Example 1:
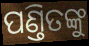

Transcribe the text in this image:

ପଣ୍ତିତଙ୍କୁ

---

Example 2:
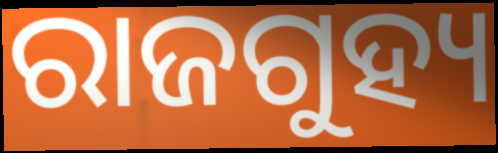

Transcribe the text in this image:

ରାଜଗୁହ୍ୟ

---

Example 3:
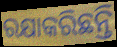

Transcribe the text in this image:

ରକ୍ଷାକରିଛନ୍ତି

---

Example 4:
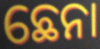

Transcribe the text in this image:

ଛେନା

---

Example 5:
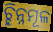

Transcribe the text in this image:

ଚ୍ଛିନ୍ନମୂଳ